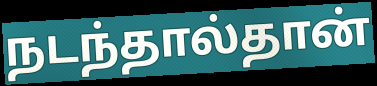
நடந்தால்தான்